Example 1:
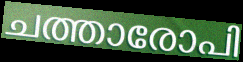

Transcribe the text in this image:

ചത്താരോപി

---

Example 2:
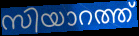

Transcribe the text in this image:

സിയാറത്ത്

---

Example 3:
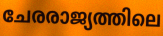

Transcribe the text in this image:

ചേരരാജ്യത്തിലെ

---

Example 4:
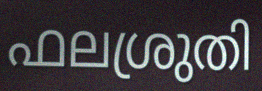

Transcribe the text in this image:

ഫലശ്രുതി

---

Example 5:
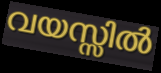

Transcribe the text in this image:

വയസ്സിൽ